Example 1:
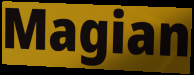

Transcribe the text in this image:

Magian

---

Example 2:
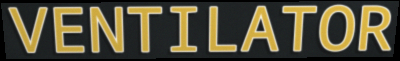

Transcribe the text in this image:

VENTILATOR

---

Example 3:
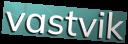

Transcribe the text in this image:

vastvik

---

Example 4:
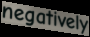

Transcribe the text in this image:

negatively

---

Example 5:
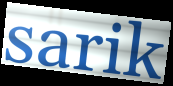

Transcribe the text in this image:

sarik